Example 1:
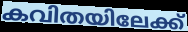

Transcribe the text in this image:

കവിതയിലേക്ക്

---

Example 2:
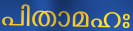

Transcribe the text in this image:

പിതാമഹഃ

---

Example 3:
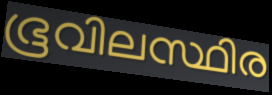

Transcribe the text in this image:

ഭൂവിലസ്ഥിര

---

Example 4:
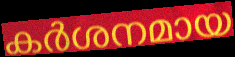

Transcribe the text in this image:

കർശനമായ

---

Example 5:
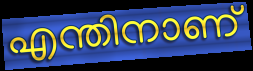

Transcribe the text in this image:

എന്തിനാണ്